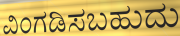
ವಿಂಗಡಿಸಬಹುದು